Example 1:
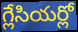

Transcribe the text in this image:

గ్లేసియర్లో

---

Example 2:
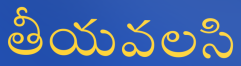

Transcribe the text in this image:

తీయవలసి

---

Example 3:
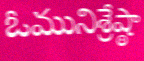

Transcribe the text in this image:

ఓమునిశ్రేష్ఠా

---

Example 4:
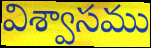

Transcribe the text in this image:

విశ్వాసము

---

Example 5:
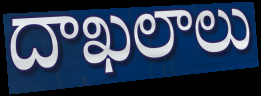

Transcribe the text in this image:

దాఖలాలు